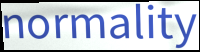
normality